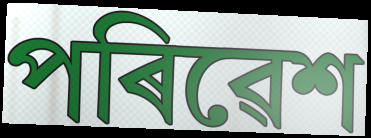
পৰিৱেশ